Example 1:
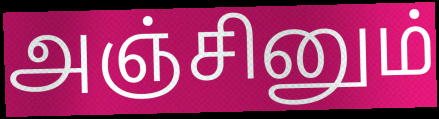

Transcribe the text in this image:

அஞ்சினும்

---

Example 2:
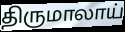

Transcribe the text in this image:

திருமாலாய்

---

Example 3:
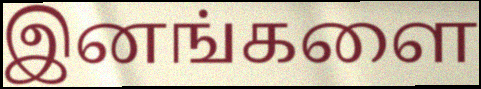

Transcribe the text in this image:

இனங்களை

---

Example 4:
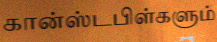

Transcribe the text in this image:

கான்ஸ்டபிள்களும்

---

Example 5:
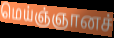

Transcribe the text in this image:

மெய்ஞ்ஞானச்